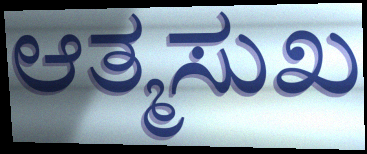
ಆತ್ಮಸುಖ